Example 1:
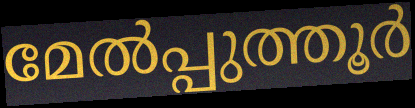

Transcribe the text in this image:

മേൽപ്പുത്തൂർ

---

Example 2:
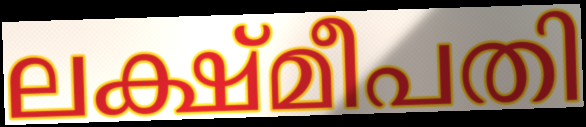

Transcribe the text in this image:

ലക്ഷ്മീപതി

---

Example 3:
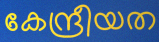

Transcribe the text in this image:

കേന്ദ്രീയത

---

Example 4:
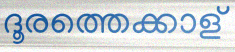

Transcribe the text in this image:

ദൂരത്തെക്കാള്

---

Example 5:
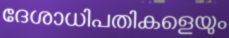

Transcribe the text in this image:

ദേശാധിപതികളെയും